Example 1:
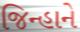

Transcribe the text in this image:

જિન્હાને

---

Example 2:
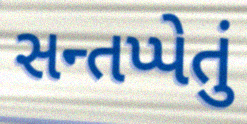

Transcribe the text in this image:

સન્તપ્પેતું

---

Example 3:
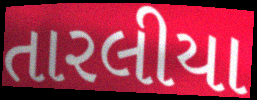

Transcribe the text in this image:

તારલીયા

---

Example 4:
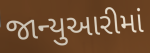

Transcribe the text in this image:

જાન્યુઆરીમાં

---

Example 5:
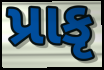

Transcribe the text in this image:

પ્રાકૃ